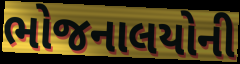
ભોજનાલયોની